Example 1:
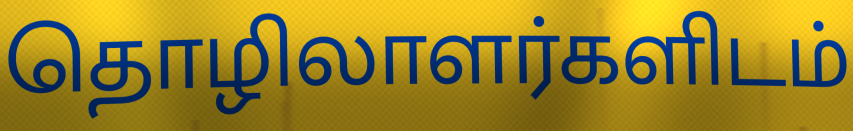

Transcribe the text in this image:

தொழிலாளர்களிடம்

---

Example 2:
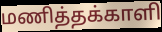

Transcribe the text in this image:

மணித்தக்காளி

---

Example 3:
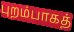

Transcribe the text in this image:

புறம்பாகத்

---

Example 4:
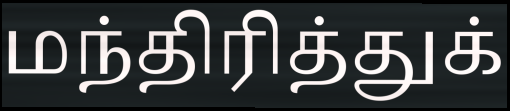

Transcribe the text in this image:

மந்திரித்துக்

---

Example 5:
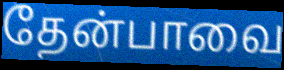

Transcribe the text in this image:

தேன்பாவை